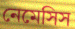
নেমেসিস